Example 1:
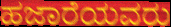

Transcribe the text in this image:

ಹಜಾರೆಯವರು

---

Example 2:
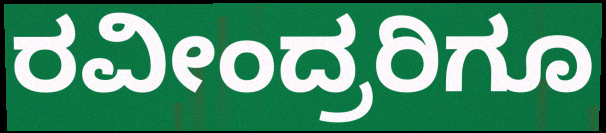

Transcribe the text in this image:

ರವೀಂದ್ರರಿಗೂ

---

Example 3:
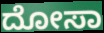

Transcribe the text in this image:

ದೋಸಾ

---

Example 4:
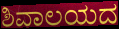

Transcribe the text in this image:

ಶಿವಾಲಯದ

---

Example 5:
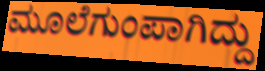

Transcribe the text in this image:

ಮೂಲೆಗುಂಪಾಗಿದ್ದು